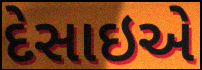
દેસાઇએ